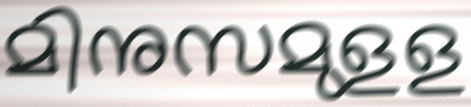
മിനുസമുളള